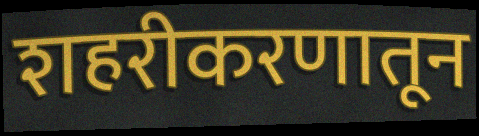
शहरीकरणातून